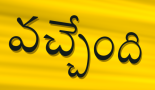
వచ్చేంది